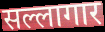
सल्‍लागार